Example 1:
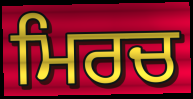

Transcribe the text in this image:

ਮਿਰਚ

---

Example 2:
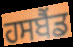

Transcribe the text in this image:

ਹਸਬੈਂਡ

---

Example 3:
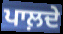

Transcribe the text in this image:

ਪਾਲ਼ਦੇ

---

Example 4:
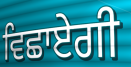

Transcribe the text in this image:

ਵਿਛਾਏਗੀ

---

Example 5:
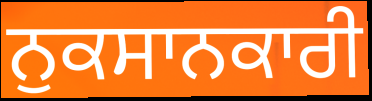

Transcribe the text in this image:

ਨੁਕਸਾਨਕਾਰੀ